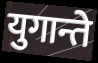
युगान्ते